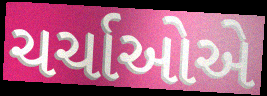
ચર્ચાઓએ